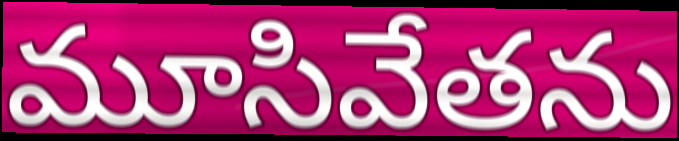
మూసివేతను